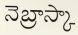
నెబ్రాస్కా